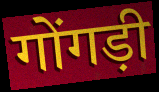
गोंगड़ी